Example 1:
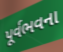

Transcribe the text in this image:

પૂર્વભવના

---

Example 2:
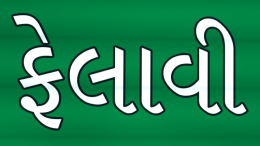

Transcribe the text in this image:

ફેલાવી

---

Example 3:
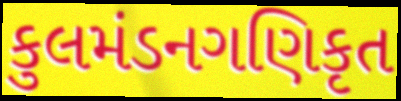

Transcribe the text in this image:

કુલમંડનગણિકૃત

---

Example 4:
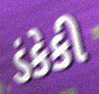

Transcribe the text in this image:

ડંકેકી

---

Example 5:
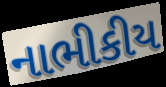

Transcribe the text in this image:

નાભીકીય